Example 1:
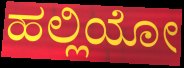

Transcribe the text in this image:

ಹಲ್ಲಿಯೋ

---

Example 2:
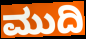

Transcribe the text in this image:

ಮುದಿ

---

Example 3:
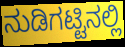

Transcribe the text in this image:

ನುಡಿಗಟ್ಟಿನಲ್ಲಿ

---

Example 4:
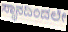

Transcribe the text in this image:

ಸ್ಥಾನದಿಂದಲೇ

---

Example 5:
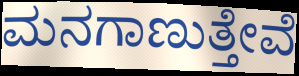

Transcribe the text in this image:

ಮನಗಾಣುತ್ತೇವೆ